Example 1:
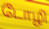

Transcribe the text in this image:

டோழி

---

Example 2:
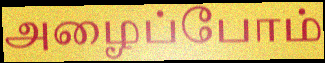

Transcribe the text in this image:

அழைப்போம்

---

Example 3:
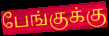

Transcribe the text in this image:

பேங்குக்கு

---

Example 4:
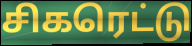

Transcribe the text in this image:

சிகரெட்டு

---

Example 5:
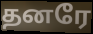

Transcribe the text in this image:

தனரே